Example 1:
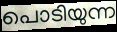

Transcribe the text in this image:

പൊടിയുന്ന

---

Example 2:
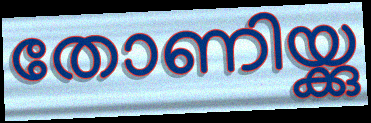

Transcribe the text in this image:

തോണിയ്ക്കു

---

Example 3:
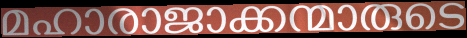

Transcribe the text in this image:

മഹാരാജാക്കന്മാരുടെ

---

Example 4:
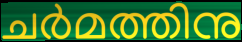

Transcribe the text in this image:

ചർമത്തിനു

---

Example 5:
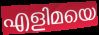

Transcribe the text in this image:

എളിമയെ